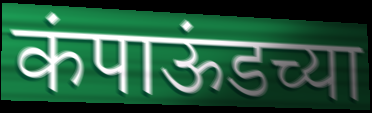
कंपाऊंडच्या